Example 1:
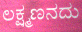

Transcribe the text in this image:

ಲಕ್ಷ್ಮಣನದು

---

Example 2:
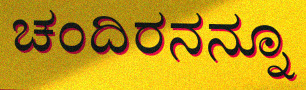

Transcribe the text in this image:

ಚಂದಿರನನ್ನೂ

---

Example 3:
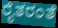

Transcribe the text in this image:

ರೈತರಂತೆ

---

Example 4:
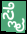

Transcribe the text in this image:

ಸ್ಲೈ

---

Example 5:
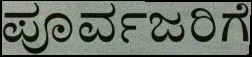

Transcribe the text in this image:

ಪೂರ್ವಜರಿಗೆ